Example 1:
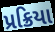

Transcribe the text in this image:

પ્રક્રિયા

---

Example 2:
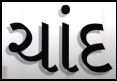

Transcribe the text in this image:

ચાંદ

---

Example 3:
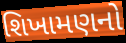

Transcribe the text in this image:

શિખામણનો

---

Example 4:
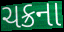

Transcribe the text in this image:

ચક્રના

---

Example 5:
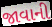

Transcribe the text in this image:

જાવાની